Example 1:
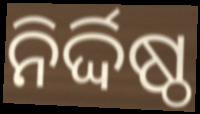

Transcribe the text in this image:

ନିର୍ଦ୍ଦିଷ୍ଠ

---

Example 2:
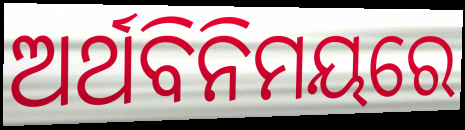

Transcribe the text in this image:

ଅର୍ଥବିନିମୟରେ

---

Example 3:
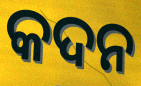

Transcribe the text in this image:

କଦନ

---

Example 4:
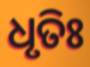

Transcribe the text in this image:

ଧୃତିଃ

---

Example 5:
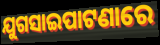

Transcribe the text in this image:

ଯୁଗସାଇପାଟଣାରେ